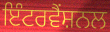
ਇੰਟਰਵੈਂਸ਼ਨਲ